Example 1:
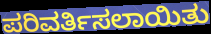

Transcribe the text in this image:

ಪರಿವರ್ತಿಸಲಾಯಿತು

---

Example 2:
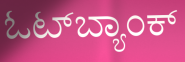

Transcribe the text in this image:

ಓಟ್‌ಬ್ಯಾಂಕ್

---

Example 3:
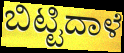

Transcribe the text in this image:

ಬಿಟ್ಟಿದಾಳೆ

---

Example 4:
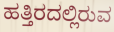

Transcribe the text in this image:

ಹತ್ತಿರದಲ್ಲಿರುವ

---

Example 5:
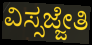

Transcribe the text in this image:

ವಿಸ್ಸಜ್ಜೇತಿ